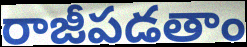
రాజీపడతాం